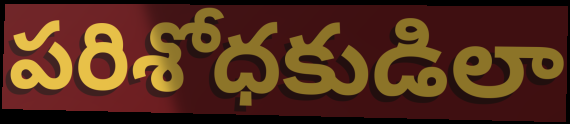
పరిశోధకుడిలా